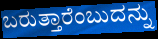
ಬರುತ್ತಾರೆಂಬುದನ್ನು